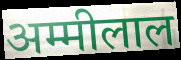
अम्मीलाल